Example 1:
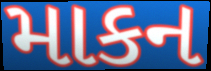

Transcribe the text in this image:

માકન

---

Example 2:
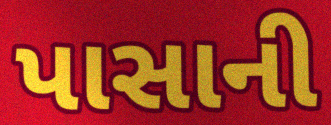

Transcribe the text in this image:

પાસાની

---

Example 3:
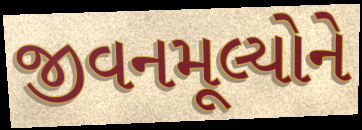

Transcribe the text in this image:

જીવનમૂલ્યોને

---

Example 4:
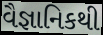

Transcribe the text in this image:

વૈજ્ઞાનિકથી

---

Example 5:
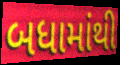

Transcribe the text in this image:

બધામાંથી